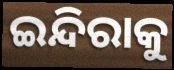
ଇନ୍ଦିରାକୁ